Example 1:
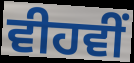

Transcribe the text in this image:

ਵੀਹਵੀਂ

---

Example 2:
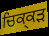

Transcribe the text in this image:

ਚਿਕ੍ਕੜ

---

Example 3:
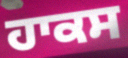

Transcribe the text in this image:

ਹਾਕਸ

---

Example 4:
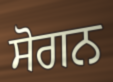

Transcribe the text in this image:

ਸੋਗਨ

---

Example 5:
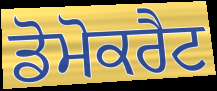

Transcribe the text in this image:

ਡੋਮੋਕਰੈਟ